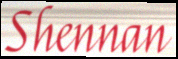
Shennan